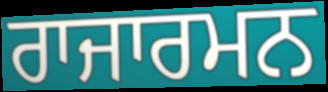
ਰਾਜਾਰਮਨ